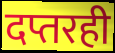
दप्तरही